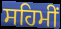
ਸਹਿਮੀਂ